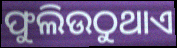
ଫୁଲିଉଠୁଥାଏ